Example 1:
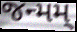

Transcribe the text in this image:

જન્મમ્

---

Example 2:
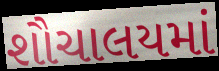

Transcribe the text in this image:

શૌચાલયમાં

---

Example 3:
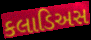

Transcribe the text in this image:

કલાડિઅસ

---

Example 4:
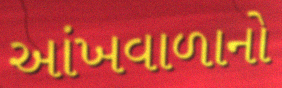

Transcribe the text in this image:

આંખવાળાનો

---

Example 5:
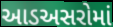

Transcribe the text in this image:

આડઅસરોમાં